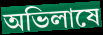
অভিলাষে